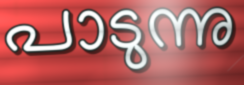
പാടുന്നു